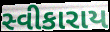
સ્વીકારાય